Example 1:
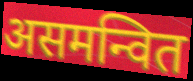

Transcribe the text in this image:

असमन्वित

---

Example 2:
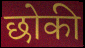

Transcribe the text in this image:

छोकी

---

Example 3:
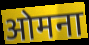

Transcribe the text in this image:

ओमना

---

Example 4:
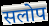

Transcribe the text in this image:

सलोप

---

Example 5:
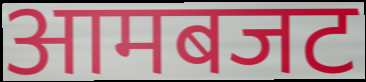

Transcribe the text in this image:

आमबजट